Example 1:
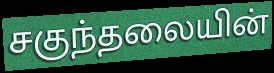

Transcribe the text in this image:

சகுந்தலையின்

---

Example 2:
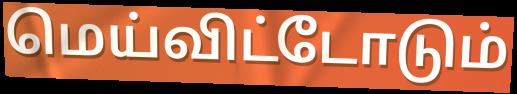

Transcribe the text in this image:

மெய்விட்டோடும்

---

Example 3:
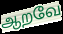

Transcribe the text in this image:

ஆறவே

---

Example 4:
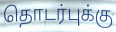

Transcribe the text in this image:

தொடர்புக்கு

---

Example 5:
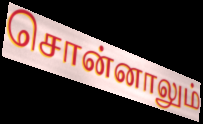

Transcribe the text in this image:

சொன்னாலும்